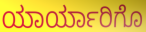
ಯಾರ್ಯಾರಿಗೊ